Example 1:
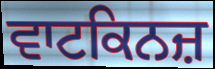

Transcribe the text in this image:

ਵਾਟਕਿਨਜ਼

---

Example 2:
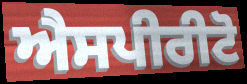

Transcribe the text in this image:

ਐਸਪੀਰੀਟੋ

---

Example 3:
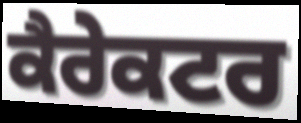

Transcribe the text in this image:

ਕੈਰੇਕਟਰ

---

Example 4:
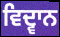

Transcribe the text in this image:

ਵਿਦ੍ਵਾਨ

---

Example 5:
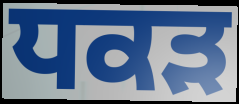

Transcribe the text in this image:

ਧਕੜ